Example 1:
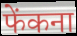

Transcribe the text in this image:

फेंकना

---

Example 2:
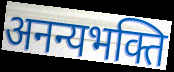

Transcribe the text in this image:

अनन्यभक्ति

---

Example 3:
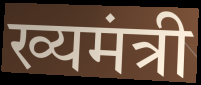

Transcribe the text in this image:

ख्यमंत्री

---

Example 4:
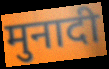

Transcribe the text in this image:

मुनादी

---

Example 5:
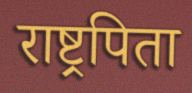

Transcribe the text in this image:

राष्ट्रपिता